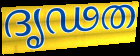
ദൃഢത